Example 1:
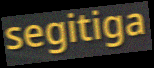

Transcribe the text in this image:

segitiga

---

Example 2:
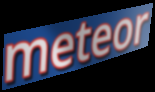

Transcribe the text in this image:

meteor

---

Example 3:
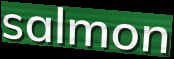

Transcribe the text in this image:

salmon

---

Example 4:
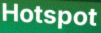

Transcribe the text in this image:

Hotspot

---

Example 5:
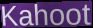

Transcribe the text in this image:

Kahoot